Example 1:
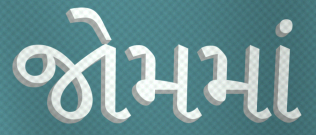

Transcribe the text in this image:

જોમમાં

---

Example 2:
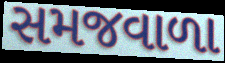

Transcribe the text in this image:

સમજવાળા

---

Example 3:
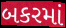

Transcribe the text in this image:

બકરમાં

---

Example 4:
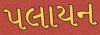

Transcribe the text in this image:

પલાયન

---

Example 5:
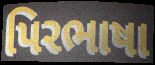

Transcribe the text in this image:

પિરભાષા